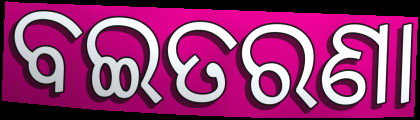
ବଇତରଣା